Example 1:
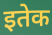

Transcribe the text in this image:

इतेक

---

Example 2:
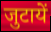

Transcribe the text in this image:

जुटायें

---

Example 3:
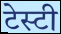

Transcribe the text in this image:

टेस्‍टी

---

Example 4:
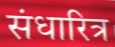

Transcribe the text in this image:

संधारित्र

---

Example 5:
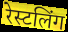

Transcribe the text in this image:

रेस्टलिंग